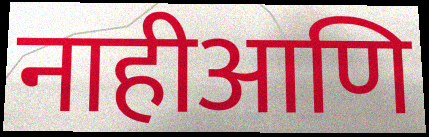
नाहीआणि